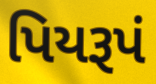
પિયરૂપં